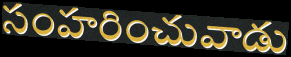
సంహరించువాడు